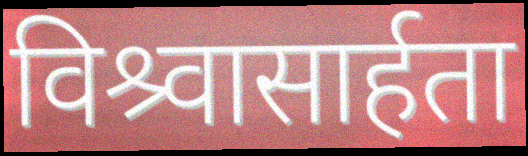
विश्र्वासार्हता